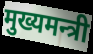
मुख्यमन्त्री